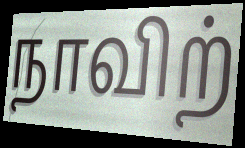
நாவிற்